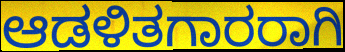
ಆಡಳಿತಗಾರರಾಗಿ